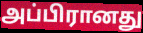
அப்பிரானது